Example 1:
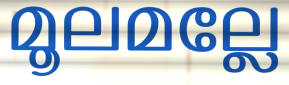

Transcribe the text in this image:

മൂലമല്ലേ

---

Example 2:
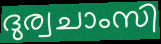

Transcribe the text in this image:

ദുര്വചാംസി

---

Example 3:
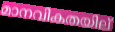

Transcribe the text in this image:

മാനവികതയില്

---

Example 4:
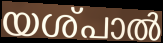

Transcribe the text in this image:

യശ്പാൽ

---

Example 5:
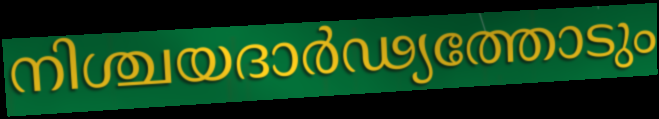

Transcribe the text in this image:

നിശ്ചയദാർഢ്യത്തോടും